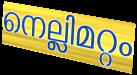
നെല്ലിമറ്റം